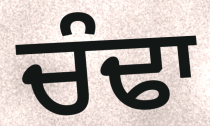
ਚੰਢਾ